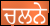
ਚਲਨੇ